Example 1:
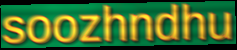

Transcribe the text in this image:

soozhndhu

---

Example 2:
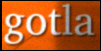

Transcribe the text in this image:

gotla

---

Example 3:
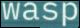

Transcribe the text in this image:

wasp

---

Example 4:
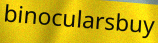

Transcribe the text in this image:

binocularsbuy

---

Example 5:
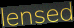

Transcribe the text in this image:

lensed